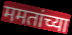
ममतांच्या